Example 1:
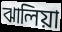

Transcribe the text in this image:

ঝালিয়া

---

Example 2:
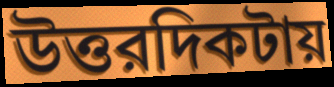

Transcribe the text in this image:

উত্তরদিকটায়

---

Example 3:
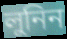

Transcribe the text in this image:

লুনিন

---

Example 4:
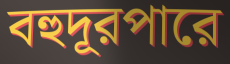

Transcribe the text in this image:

বহুদূরপারে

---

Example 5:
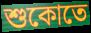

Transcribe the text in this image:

শুকোতে